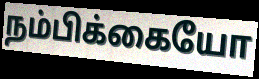
நம்பிக்கையோ